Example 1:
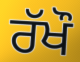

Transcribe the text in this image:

ਰੱਖੌ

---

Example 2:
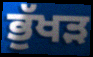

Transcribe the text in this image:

ਭੁੱਖੜ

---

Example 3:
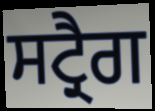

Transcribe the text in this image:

ਸਟ੍ਰੈਗ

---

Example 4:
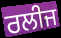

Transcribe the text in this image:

ਰਲੀਜ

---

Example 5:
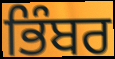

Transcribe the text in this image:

ਭਿੰਬਰ